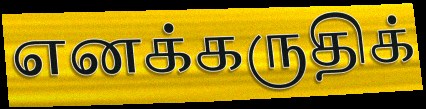
எனக்கருதிக்